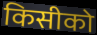
किसीको